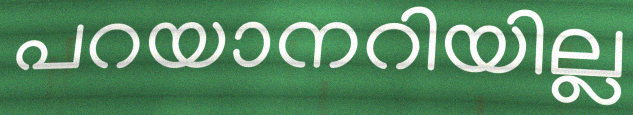
പറയാനറിയില്ല